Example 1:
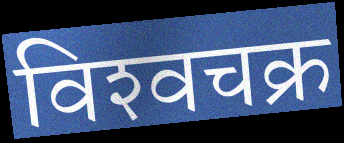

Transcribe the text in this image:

विश्वचक्र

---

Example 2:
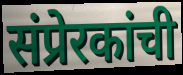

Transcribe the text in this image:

संप्रेरकांची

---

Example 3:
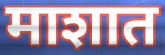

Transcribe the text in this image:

माशात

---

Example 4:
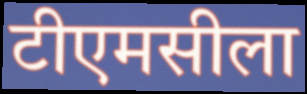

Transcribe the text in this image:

टीएमसीला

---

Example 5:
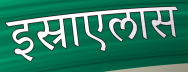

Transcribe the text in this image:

इस्राएलास